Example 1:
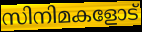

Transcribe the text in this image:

സിനിമകളോട്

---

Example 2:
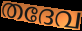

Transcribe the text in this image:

തദേവ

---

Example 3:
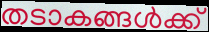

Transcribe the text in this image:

തടാകങ്ങൾക്ക്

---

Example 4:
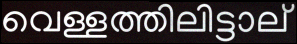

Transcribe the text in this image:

വെള്ളത്തിലിട്ടാല്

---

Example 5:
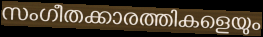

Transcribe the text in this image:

സംഗീതക്കാരത്തികളെയും